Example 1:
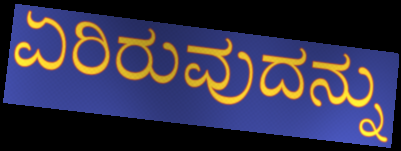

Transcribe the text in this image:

ಏರಿರುವುದನ್ನು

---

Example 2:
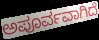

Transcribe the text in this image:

ಅಪೂರ್ವವಾಗಿದೆ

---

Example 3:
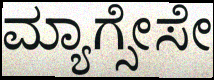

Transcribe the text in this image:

ಮ್ಯಾಗ್ಸೇಸೇ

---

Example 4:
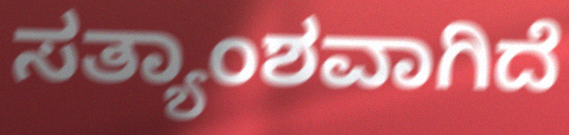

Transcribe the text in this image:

ಸತ್ಯಾಂಶವಾಗಿದೆ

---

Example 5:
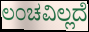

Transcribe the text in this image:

ಲಂಚವಿಲ್ಲದೆ